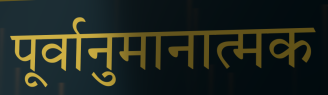
पूर्वानुमानात्मक